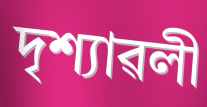
দৃশ্যাৱলী